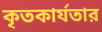
কৃতকার্যতার